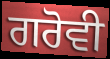
ਗਰੋਵੀ